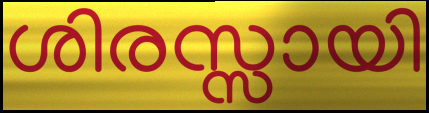
ശിരസ്സായി